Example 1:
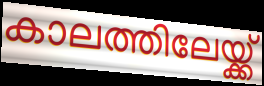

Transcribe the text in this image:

കാലത്തിലേയ്ക്ക്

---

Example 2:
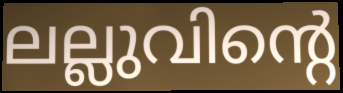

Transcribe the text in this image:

ലല്ലുവിന്റെ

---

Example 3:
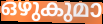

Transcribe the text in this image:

ഒഴുകുമാ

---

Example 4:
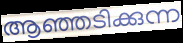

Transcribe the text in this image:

ആഞ്ഞടിക്കുന്ന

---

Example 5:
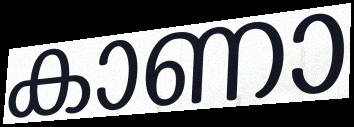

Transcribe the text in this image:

കാണാ